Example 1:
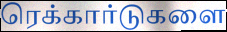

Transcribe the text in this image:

ரெக்கார்டுகளை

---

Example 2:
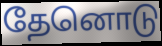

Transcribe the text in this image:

தேனொடு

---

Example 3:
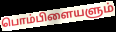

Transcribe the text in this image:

பொம்பிளையளும்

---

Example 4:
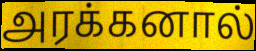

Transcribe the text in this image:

அரக்கனால்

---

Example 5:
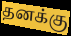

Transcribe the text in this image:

தனக்கு